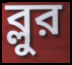
ব্লুর